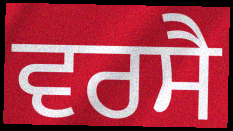
ਵਰਸੈ